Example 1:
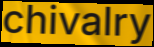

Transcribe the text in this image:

chivalry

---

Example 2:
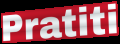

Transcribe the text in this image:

Pratiti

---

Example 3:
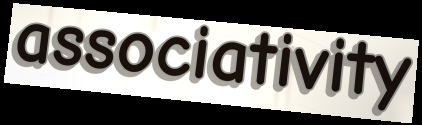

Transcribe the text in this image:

associativity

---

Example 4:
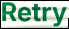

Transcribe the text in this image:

Retry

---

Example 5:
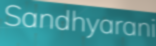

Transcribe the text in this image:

Sandhyarani